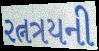
રત્નત્રયની